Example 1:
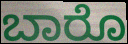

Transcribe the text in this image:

ಬಾರೊ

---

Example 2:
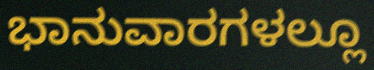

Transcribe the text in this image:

ಭಾನುವಾರಗಳಲ್ಲೂ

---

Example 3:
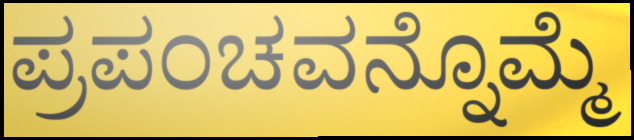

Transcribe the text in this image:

ಪ್ರಪಂಚವನ್ನೊಮ್ಮೆ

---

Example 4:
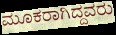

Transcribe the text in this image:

ಮೂಕರಾಗಿದ್ದವರು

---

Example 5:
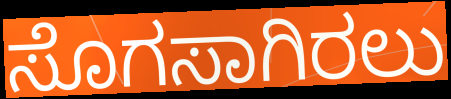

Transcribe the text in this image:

ಸೊಗಸಾಗಿರಲು